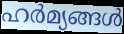
ഹർമ്യങ്ങൾ